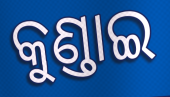
କୁଣ୍ଡାଇ